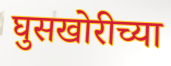
घुसखोरीच्या